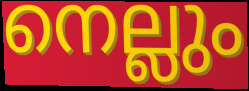
നെല്ലും